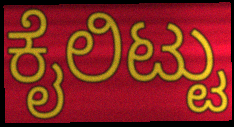
ಕೈಲಿಟ್ಟು